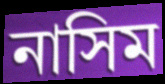
নাসিম